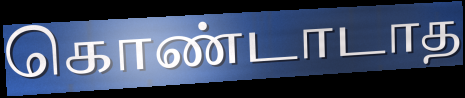
கொண்டாடாத